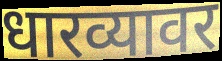
धारव्यावर